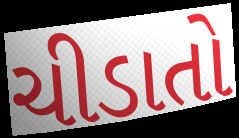
ચીડાતો